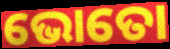
ଭୋତୋ